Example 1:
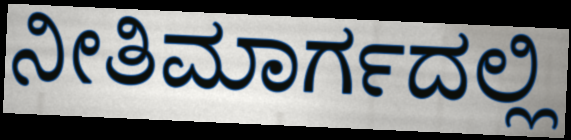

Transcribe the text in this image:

ನೀತಿಮಾರ್ಗದಲ್ಲಿ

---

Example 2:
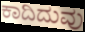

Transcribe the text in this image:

ಕಾದಿದುವು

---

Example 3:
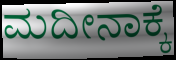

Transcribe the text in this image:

ಮದೀನಾಕ್ಕೆ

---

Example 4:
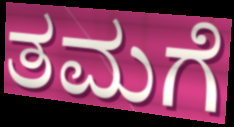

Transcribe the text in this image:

ತಮಗೆ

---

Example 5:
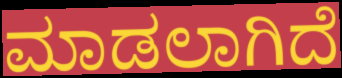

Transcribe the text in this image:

ಮಾಡಲಾಗಿದೆ